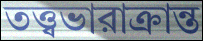
তত্ত্বভারাক্রান্ত